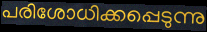
പരിശോധിക്കപ്പെടുന്നു